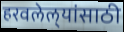
हरवलेल्यांसाठी